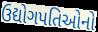
ઉદ્યોગપતિઓનો